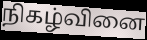
நிகழ்வினை